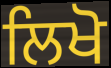
ਲਿਖੋ